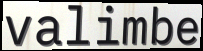
valimbe